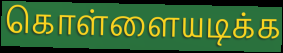
கொள்ளையடிக்க